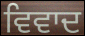
ਵਿਵਾਦ